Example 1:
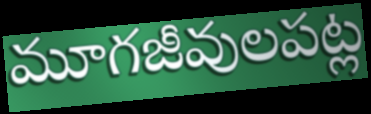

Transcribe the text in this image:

మూగజీవులపట్ల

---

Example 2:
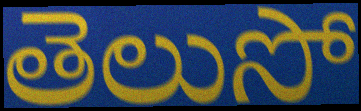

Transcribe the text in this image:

తెలుసో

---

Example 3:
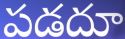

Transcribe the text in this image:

పడదూ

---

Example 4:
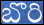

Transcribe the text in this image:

బొరి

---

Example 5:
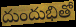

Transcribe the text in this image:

దుందుభితో